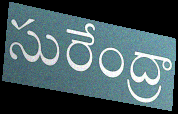
సురేంద్రా